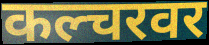
कल्चरवर